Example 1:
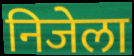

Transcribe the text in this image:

निजेला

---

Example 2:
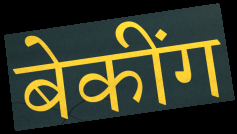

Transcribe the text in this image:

बेकींग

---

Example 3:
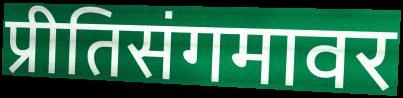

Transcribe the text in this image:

प्रीतिसंगमावर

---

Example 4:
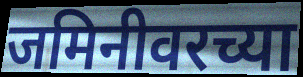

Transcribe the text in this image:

जमिनीवरच्या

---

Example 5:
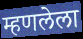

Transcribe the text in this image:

म्हणलेला